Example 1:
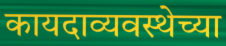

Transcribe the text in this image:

कायदाव्यवस्थेच्या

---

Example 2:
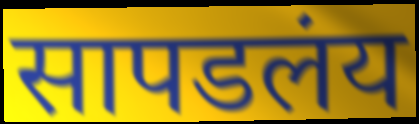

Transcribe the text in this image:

सापडलंय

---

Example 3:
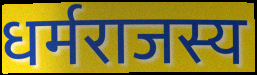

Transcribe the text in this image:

धर्मराजस्य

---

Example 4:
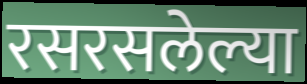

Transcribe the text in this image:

रसरसलेल्या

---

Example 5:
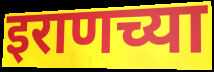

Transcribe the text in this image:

इराणच्या